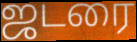
ஜடரை